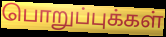
பொறுப்புக்கள்